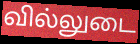
வில்லுடை